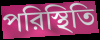
পরিস্থিতি